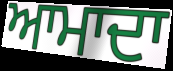
ਆਮਾਦਾ